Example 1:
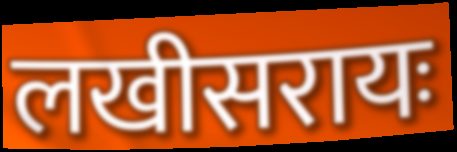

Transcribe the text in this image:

लखीसरायः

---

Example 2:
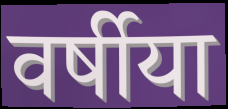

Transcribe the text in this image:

वर्षीया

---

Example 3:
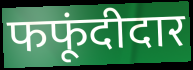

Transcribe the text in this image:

फफूंदीदार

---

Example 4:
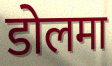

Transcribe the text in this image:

डोलमा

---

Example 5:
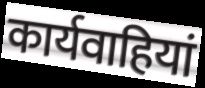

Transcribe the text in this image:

कार्यवाहियां